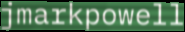
jmarkpowell